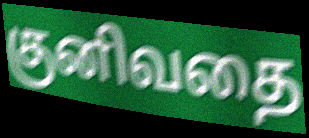
குனிவதை